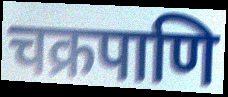
चक्रपाणि